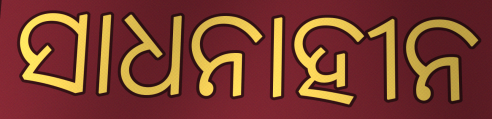
ସାଧନାହୀନ